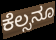
ಕೆಲ್ಸನೂ